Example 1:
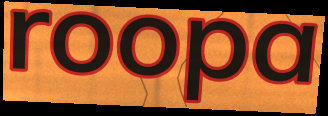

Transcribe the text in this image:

roopa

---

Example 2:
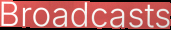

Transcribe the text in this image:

Broadcasts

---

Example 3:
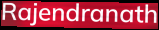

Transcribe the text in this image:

Rajendranath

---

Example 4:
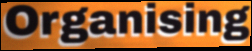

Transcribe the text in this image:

Organising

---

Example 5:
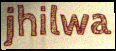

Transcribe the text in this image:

jhilwa